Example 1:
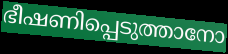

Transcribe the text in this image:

ഭീഷണിപ്പെടുത്താനോ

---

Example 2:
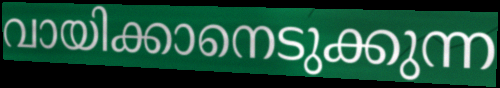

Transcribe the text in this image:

വായിക്കാനെടുക്കുന്ന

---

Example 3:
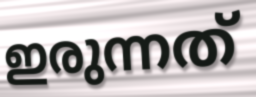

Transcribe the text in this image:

ഇരുന്നത്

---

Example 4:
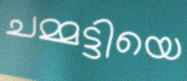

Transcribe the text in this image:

ചമ്മട്ടിയെ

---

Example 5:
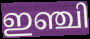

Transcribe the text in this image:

ഇഞ്ചി